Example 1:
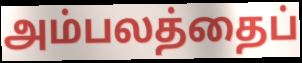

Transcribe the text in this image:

அம்பலத்தைப்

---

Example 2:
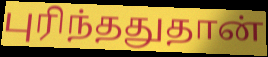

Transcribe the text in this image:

புரிந்ததுதான்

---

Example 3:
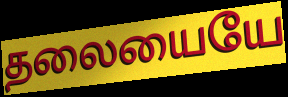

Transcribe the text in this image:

தலையையே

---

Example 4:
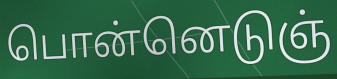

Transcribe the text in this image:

பொன்னெடுஞ்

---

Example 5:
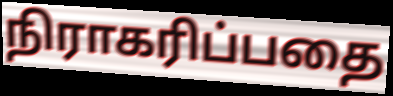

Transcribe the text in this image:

நிராகரிப்பதை